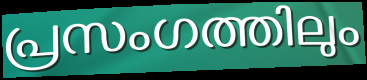
പ്രസംഗത്തിലും